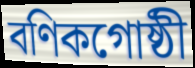
বণিকগোষ্ঠী